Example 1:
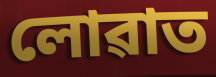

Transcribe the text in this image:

লোৱাত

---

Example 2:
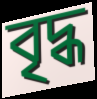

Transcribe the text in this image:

বৃদ্ধ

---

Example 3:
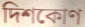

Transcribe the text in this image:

দিশকোণ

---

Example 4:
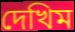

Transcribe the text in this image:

দেখিম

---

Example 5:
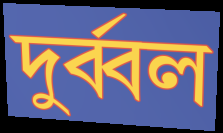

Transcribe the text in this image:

দুৰ্ব্বল